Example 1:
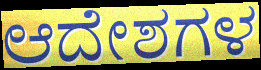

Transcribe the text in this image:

ಆದೇಶಗಳ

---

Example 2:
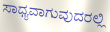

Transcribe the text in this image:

ಸಾಧ್ಯವಾಗುವುದರಲ್ಲಿ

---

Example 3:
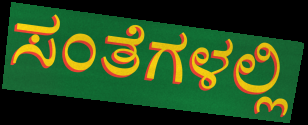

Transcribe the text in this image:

ಸಂತೆಗಳಲ್ಲಿ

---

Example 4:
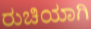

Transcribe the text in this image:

ರುಚಿಯಾಗಿ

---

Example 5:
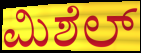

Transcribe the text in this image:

ಮಿಶೆಲ್